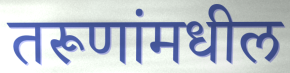
तरूणांमधील